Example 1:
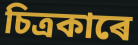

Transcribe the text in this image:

চিত্ৰকাৰে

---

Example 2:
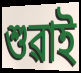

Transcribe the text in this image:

শুৱাই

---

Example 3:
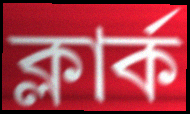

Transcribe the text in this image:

ক্লাৰ্ক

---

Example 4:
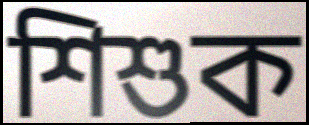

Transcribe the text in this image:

শিশুক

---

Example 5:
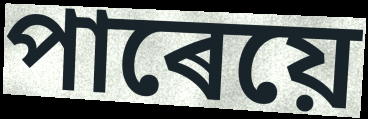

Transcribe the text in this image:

পাৰেয়ে